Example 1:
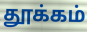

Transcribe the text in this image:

தூக்கம்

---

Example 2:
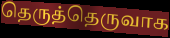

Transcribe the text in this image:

தெருத்தெருவாக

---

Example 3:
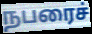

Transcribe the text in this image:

நபரைச்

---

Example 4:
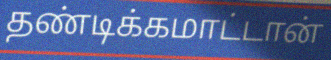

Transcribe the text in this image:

தண்டிக்கமாட்டான்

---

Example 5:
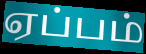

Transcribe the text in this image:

ஏப்பம்